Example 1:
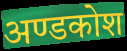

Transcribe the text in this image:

अण्डकोश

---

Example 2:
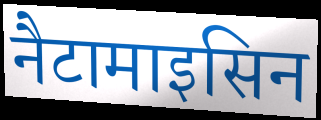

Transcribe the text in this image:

नैटामाइसिन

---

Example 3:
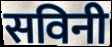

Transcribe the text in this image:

सविनी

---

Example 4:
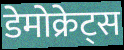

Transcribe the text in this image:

डेमोक्रेट्स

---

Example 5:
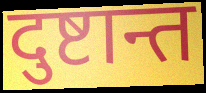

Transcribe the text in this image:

दुष्टान्त